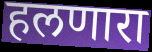
हलणारा